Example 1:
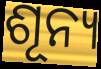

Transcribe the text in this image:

ଶୂନ୍ୟ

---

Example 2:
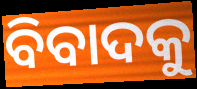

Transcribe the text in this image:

ବିବାଦକୁ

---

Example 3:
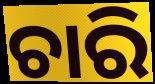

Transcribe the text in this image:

ଚାରି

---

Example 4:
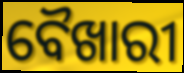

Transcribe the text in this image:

ବୈଖାରୀ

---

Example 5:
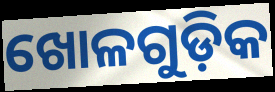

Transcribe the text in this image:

ଖୋଳଗୁଡ଼ିକ